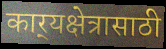
कार्यक्षेत्रासाठी